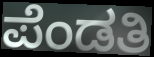
ಪೆಂಡತಿ